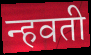
न्हवती